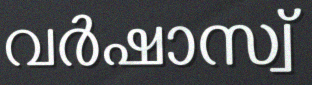
വർഷാസ്വ്